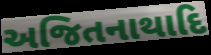
અજિતનાથાદિ